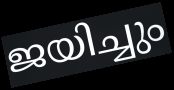
ജയിച്ചും